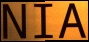
NIA